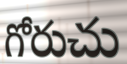
గోరుచు